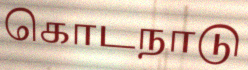
கொடநாடு